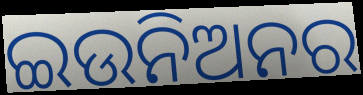
ଇଉନିଅନର